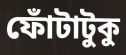
ফোঁটাটুকু